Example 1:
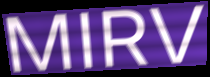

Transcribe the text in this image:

MIRV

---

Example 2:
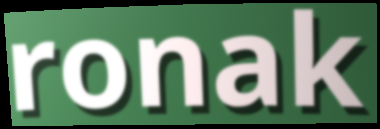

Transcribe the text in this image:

ronak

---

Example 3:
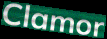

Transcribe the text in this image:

Clamor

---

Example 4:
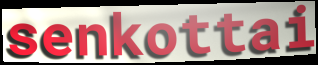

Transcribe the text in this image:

senkottai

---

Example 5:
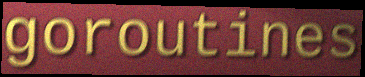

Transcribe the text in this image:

goroutines